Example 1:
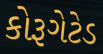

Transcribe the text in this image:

કોરૂગેટેડ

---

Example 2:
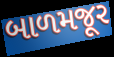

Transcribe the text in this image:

બાળમજૂર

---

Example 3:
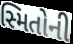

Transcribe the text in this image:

સ્મિતોની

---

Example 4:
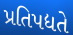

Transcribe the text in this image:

પ્રતિપદ્યતે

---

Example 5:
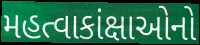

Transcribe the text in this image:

મહત્વાકાંક્ષાઓનો